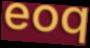
eoq